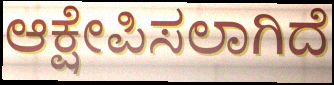
ಆಕ್ಷೇಪಿಸಲಾಗಿದೆ